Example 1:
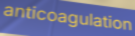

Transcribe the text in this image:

anticoagulation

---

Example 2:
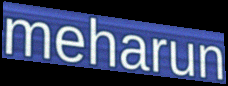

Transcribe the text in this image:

meharun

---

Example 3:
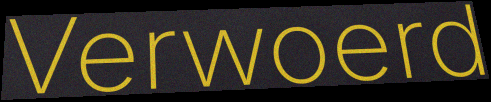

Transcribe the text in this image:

Verwoerd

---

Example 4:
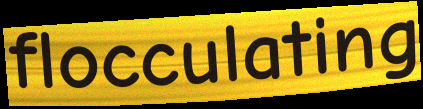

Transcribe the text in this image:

flocculating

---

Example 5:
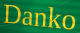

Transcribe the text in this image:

Danko